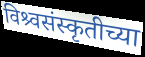
विश्र्वसंस्कृतीच्या